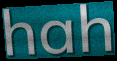
hah